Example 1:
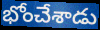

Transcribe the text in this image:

భోంచేశాడు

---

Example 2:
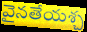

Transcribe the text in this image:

వైనతేయశ్చ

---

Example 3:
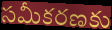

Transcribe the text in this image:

సమీకరణకు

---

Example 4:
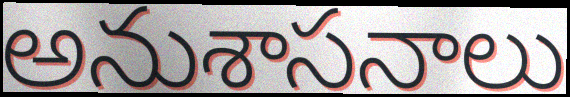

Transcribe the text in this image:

అనుశాసనాలు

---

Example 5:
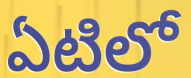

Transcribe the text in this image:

ఏటిలో